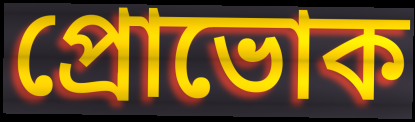
প্রোভোক